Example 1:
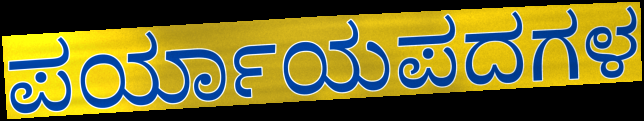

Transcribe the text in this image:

ಪರ್ಯಾಯಪದಗಳ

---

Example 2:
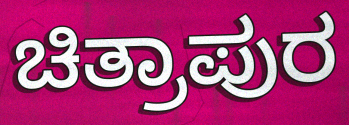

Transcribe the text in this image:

ಚಿತ್ರಾಪುರ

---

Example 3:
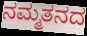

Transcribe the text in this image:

ನಮ್ಮತನದ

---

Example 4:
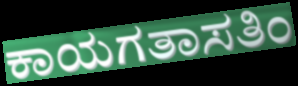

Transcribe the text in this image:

ಕಾಯಗತಾಸತಿಂ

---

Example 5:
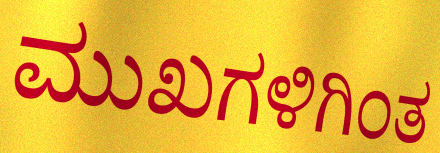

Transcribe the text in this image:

ಮುಖಗಳಿಗಿಂತ